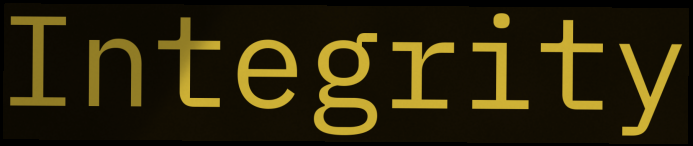
Integrity